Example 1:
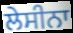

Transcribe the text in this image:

ਲੇਸੀਨਾ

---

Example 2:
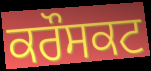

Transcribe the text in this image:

ਕਰੌਸਕਟ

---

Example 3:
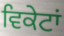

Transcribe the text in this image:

ਵਿਕੇਟਾਂ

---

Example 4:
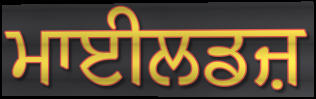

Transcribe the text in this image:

ਮਾਈਲਡਜ਼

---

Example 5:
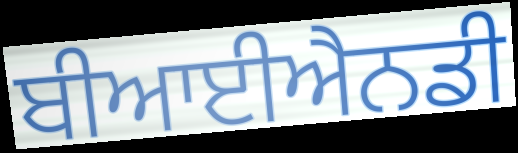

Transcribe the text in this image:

ਬੀਆਈਐਨਡੀ